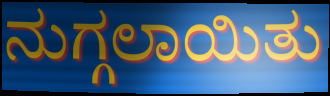
ನುಗ್ಗಲಾಯಿತು